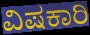
ವಿಷಕಾರಿ